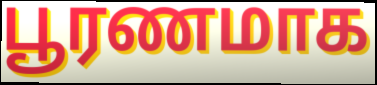
பூரணமாக